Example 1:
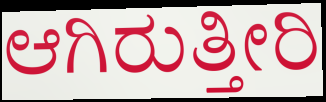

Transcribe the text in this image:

ಆಗಿರುತ್ತೀರಿ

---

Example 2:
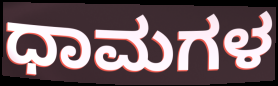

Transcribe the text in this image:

ಧಾಮಗಳ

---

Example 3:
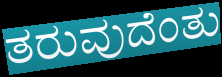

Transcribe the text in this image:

ತರುವುದೆಂತು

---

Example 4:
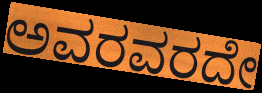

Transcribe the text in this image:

ಅವರವರದೇ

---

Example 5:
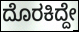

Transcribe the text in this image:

ದೊರಕಿದ್ದೇ